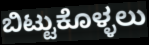
ಬಿಟ್ಟುಕೊಳ್ಳಲು